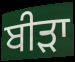
ਬੀੜਾ